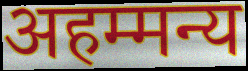
अहम्मन्य